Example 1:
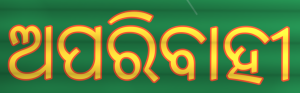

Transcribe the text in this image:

ଅପରିବାହୀ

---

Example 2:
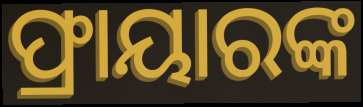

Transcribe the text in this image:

ଫ୍ରାୟାରଙ୍କ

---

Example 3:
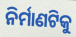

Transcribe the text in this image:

ନିର୍ମାଣଟିକୁ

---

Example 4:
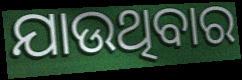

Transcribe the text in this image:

ଯାଉଥିବାର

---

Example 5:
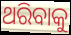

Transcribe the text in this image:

ଥରିବାକୁ